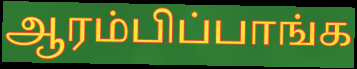
ஆரம்பிப்பாங்க